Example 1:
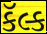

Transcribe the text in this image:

કૅલ્ક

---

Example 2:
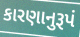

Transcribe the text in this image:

કારણાનુરૂપં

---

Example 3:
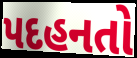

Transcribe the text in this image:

પદહનતો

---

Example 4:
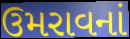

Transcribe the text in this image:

ઉમરાવનાં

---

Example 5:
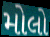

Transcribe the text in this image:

મોલો